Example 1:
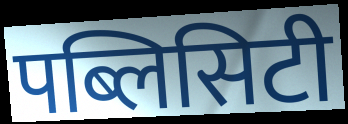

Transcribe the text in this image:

पब्लिसिटी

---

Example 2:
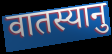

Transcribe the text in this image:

वातस्यानु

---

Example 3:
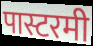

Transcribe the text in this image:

पास्टरमी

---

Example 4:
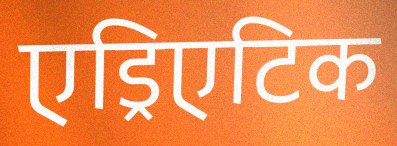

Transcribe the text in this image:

एड्रिएटिक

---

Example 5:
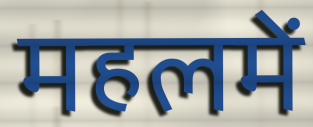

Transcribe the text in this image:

महलमें